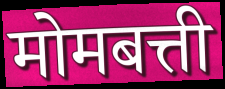
मोमबत्ती